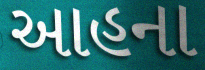
આહના